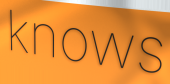
knows